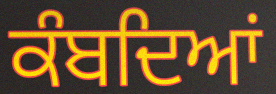
ਕੰਬਦਿਆਂ